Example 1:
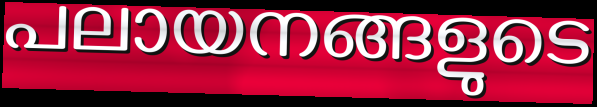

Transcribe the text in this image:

പലായനങ്ങളുടെ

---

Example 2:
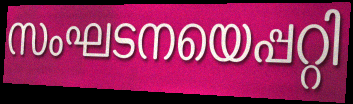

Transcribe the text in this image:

സംഘടനയെപ്പറ്റി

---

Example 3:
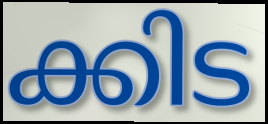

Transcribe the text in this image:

ക്കിട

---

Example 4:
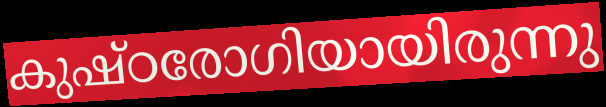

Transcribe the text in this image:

കുഷ്ഠരോഗിയായിരുന്നു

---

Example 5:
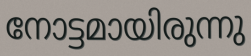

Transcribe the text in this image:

നോട്ടമായിരുന്നു